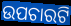
ଉପଚାରଟି